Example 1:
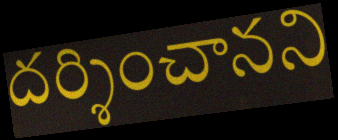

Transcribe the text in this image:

దర్శించానని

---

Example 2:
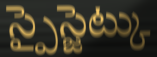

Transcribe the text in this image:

స్పైస్జెట్కు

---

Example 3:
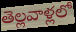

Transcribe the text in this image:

తెల్లవాళ్లలో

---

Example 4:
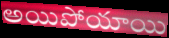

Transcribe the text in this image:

అయిపోయాయి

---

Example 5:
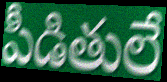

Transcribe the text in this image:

పీడితులే